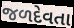
જળદેવતા